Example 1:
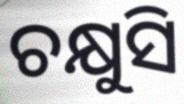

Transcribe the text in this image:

ଚକ୍ଷୁସି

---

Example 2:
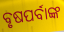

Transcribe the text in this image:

ବୃଷପର୍ବାଙ୍କ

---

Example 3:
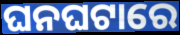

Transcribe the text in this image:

ଘନଘଟାରେ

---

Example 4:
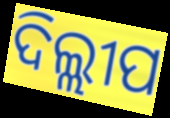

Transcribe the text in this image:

ଦିଲ୍ଲୀପ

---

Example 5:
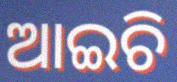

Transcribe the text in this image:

ଆଇଚି